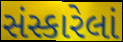
સંસ્કારેલાં